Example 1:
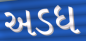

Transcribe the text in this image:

અડધ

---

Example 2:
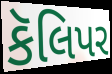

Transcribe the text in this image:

કૅલિપર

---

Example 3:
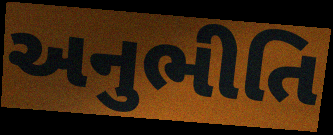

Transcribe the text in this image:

અનુભીતિ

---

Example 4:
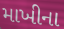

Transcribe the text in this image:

માખીના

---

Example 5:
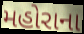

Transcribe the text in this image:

મહોરાના